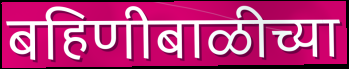
बहिणीबाळीच्या